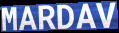
MARDAV